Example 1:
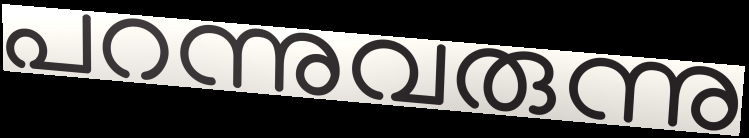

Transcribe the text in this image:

പറന്നുവരുന്നു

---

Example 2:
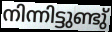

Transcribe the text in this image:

നിന്നിട്ടുണ്ടു്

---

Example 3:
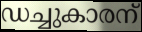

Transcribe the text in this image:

ഡച്ചുകാരന്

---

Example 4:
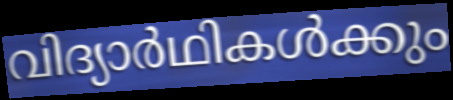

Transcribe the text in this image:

വിദ്യാർഥികൾക്കും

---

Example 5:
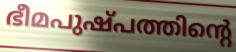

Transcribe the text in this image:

ഭീമപുഷ്പത്തിന്റെ